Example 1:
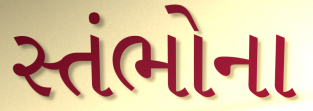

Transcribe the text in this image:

સ્તંભોના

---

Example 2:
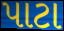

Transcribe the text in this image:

પાટા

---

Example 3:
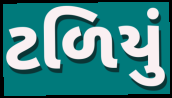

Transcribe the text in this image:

ટળિયું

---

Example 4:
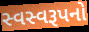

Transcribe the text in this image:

સ્વસ્વરૂપનો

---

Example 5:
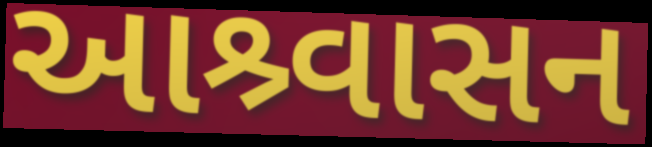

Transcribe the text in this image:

આશ્ર્વાસન